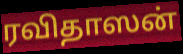
ரவிதாஸன்